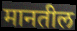
मानतील